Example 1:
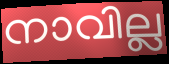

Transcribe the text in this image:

നാവില്ല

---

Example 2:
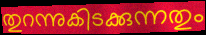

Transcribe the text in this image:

തുറന്നുകിടക്കുന്നതും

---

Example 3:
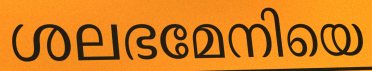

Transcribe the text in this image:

ശലഭമേനിയെ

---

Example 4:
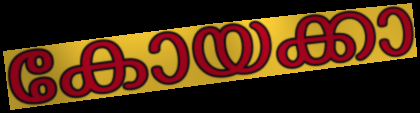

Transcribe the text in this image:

കോയക്കാ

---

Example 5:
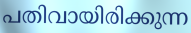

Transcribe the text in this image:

പതിവായിരിക്കുന്ന